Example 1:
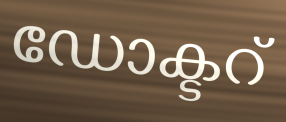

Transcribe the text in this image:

ഡോക്ടറ്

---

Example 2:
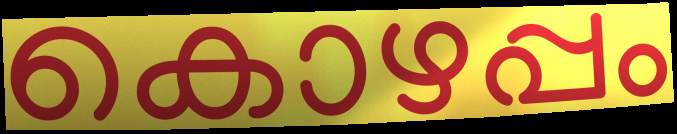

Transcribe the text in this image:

കൊഴപ്പം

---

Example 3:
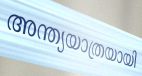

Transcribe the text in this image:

അന്ത്യയാത്രയായി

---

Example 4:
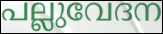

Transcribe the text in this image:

പല്ലുവേദന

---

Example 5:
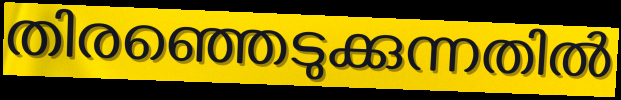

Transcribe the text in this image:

തിരഞ്ഞെടുക്കുന്നതിൽ